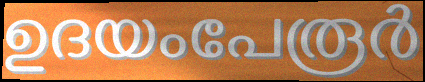
ഉദയംപേരൂർ